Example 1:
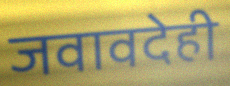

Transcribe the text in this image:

जवावदेही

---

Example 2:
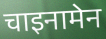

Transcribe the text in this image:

चाइनामेन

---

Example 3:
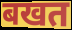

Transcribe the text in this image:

बखत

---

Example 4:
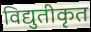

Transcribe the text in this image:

विद्युतीकृत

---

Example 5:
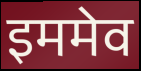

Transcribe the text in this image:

इममेव